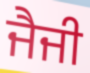
ਜੈਜੀ